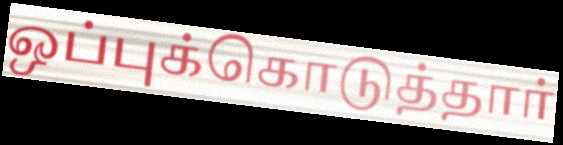
ஒப்புக்கொடுத்தார்